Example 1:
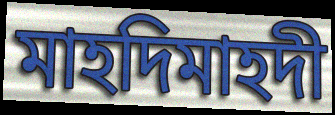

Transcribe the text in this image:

মাহদিমাহদী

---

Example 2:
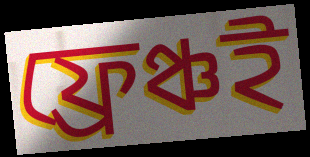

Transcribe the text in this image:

ফ্রেঞ্চই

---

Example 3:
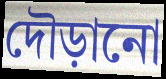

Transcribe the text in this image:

দৌড়ানো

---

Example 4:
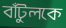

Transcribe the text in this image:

বাঁটুলকে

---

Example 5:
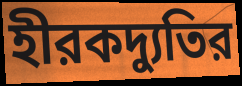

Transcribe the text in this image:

হীরকদ্যুতির